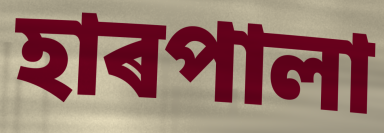
হাৰপালা